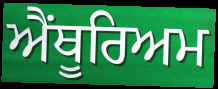
ਐਂਥੂਰਿਅਮ